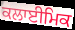
ਕਲਾਈਮਿਕ